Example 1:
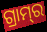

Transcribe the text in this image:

ଗ୍ରାମ୍‌ର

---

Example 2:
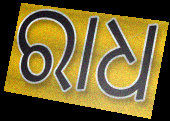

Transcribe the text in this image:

ରାଧ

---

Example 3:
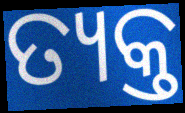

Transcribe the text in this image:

ତ୍ୟକ୍ତ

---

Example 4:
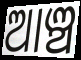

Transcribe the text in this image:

ଆଞ୍ଚ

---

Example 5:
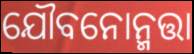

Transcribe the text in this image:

ଯୌବନୋନ୍ମତ୍ତା